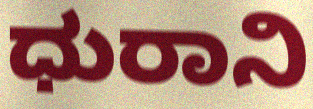
ಧುರಾನಿ